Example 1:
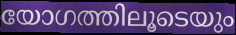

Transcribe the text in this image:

യോഗത്തിലൂടെയും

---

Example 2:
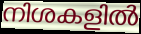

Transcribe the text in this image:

നിശകളിൽ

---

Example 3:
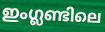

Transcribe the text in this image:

ഇംഗ്ലണ്ടിലെ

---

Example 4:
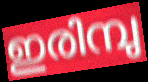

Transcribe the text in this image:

ഇരിമ്പു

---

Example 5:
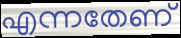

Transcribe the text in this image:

എന്നതേണ്